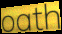
oath